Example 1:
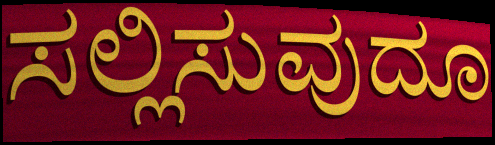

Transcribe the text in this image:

ಸಲ್ಲಿಸುವುದೂ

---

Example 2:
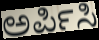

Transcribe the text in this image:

ಅರ್ಪಿಸಿ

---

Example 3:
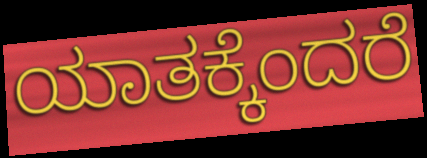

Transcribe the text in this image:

ಯಾತಕ್ಕೆಂದರೆ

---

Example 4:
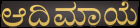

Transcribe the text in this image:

ಆದಿಮಾಯೆ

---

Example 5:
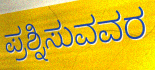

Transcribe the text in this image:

ಪ್ರಶ್ನಿಸುವವರ